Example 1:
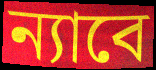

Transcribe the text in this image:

ন্যাবে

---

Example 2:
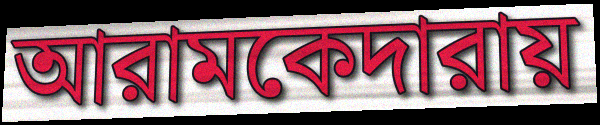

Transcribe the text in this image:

আরামকেদারায়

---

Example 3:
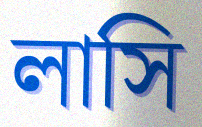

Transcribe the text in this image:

লাসি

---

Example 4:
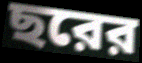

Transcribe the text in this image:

ছরের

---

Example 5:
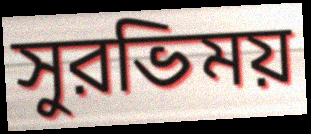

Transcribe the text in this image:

সুরভিময়